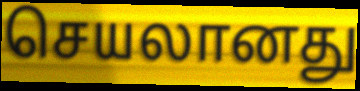
செயலானது